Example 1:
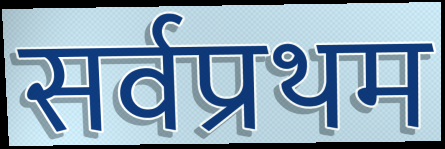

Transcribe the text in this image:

सर्वप्रथम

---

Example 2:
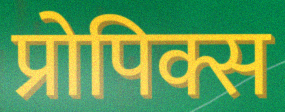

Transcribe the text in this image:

प्रोपिक्स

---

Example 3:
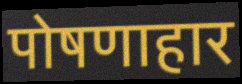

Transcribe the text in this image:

पोषणाहार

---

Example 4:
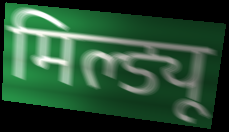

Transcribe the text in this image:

मिल्ड्यू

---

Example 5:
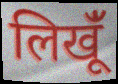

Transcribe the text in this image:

लिखूंँ